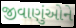
જીવાણુંઓને